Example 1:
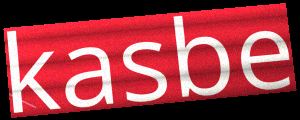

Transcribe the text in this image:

kasbe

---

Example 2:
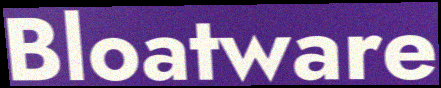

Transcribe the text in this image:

Bloatware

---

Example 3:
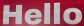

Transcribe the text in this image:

Hello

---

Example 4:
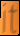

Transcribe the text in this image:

it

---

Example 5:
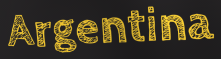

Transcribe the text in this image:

Argentina